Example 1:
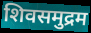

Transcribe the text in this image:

शिवसमुद्रम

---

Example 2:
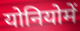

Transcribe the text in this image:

योनियोमें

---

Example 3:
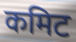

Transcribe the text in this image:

कमिट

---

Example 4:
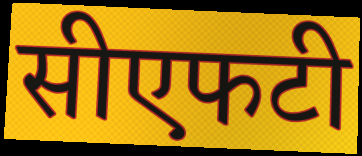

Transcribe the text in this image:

सीएफटी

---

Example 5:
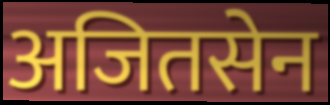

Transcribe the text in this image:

अजितसेन